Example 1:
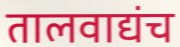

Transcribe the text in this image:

तालवाद्यंच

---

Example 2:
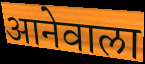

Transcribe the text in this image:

आनेवाला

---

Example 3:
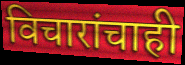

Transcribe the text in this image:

विचारांचाही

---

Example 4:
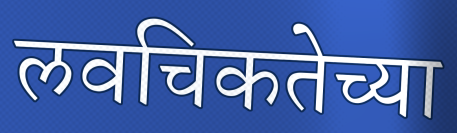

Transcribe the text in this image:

लवचिकतेच्या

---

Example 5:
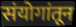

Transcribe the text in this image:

संयोगांतून